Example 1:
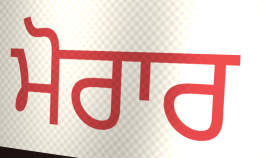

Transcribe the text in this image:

ਮੋਰਾਰ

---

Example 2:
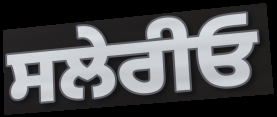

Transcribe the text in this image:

ਸਲੇਰੀਓ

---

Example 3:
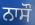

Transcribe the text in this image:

ਨਾਸੌ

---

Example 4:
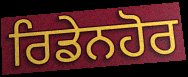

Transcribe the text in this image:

ਰਿਡੇਨਹੋਰ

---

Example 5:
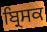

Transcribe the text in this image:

ਬ੍ਰਿਸਕ